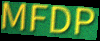
MFDP